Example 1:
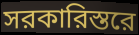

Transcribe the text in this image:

সরকারিস্তরে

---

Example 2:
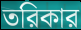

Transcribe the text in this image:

তরিকার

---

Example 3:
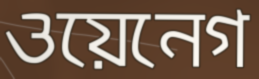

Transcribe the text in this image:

ওয়েনেগ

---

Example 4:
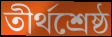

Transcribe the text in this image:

তীর্থশ্রেষ্ঠ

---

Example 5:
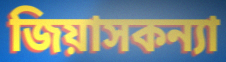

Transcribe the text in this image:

জিয়াসকন্যা